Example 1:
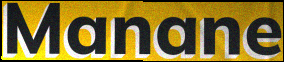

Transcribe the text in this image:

Manane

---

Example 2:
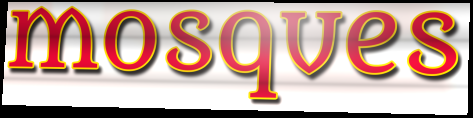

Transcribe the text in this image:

mosques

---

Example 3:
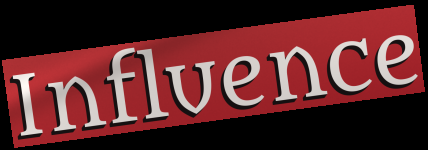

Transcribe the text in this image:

Influence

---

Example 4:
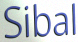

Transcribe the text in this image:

Sibal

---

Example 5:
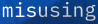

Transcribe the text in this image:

misusing